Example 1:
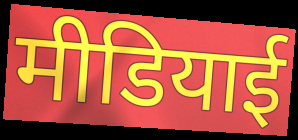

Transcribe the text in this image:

मीडियाई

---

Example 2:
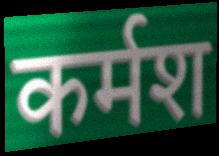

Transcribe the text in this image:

कर्मश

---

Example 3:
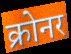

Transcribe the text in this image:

क्रोनर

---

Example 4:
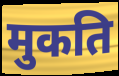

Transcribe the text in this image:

मुकति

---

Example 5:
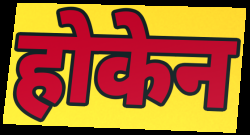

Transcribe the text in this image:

होकेन